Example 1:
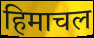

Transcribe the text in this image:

हिमाचल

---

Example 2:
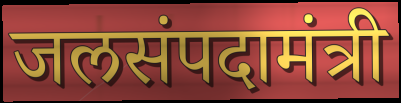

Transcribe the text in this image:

जलसंपदामंत्री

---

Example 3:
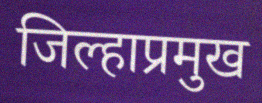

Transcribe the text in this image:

जिल्हाप्रमुख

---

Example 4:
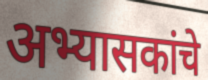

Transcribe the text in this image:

अभ्यासकांचे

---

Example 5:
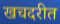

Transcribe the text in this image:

खचदरीत